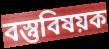
বস্তুবিষয়ক